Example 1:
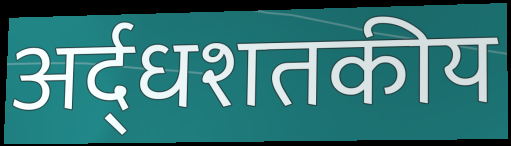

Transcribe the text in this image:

अर्द्धशतकीय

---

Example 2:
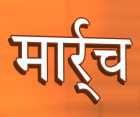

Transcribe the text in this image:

मार्र्च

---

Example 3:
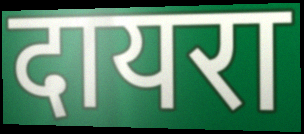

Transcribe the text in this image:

दायरा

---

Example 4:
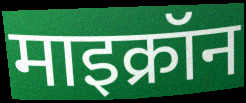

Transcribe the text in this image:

माइक्रॉन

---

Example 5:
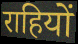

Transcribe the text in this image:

राहियों